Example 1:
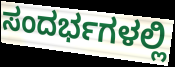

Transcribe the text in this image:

ಸಂದರ್ಭಗಳಲ್ಲಿ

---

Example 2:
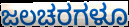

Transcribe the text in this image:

ಜಲಚರಗಳೂ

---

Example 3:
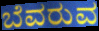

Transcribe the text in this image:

ಬೆವರುವ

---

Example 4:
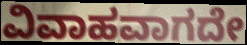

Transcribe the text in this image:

ವಿವಾಹವಾಗದೇ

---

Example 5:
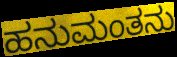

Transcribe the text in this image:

ಹನುಮಂತನು